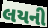
લયની